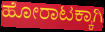
ಹೋರಾಟಕ್ಕಾಗಿ